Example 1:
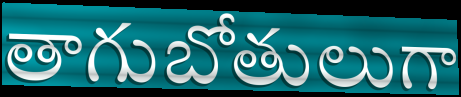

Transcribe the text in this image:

తాగుబోతులుగా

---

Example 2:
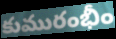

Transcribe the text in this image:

కుమురంభీం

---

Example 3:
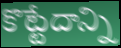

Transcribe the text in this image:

కొట్టేదాన్ని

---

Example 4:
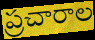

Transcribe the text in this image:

ప్రచారాల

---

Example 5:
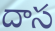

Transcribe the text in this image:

దాస